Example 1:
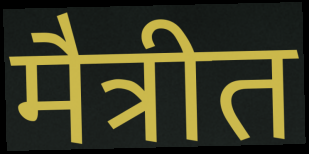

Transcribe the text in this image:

मैत्रीत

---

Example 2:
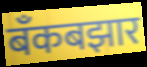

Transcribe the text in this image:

बँकबझार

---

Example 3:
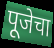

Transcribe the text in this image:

पूजेचा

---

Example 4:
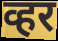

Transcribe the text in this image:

व्हर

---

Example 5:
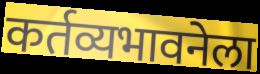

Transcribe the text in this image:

कर्तव्यभावनेला